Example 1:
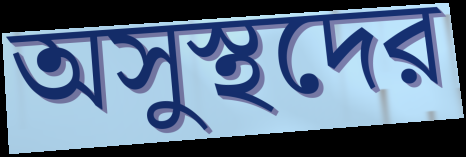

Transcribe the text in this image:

অসুস্থদের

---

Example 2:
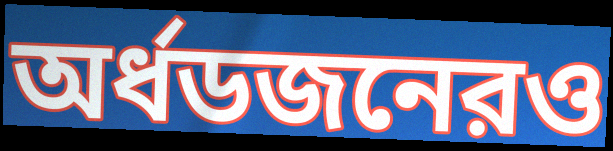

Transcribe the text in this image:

অর্ধডজনেরও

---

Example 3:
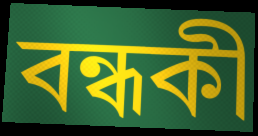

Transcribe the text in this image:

বন্ধকী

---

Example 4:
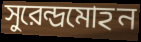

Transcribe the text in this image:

সুরেন্দ্রমোহন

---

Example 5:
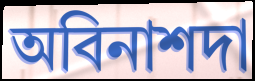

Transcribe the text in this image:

অবিনাশদা